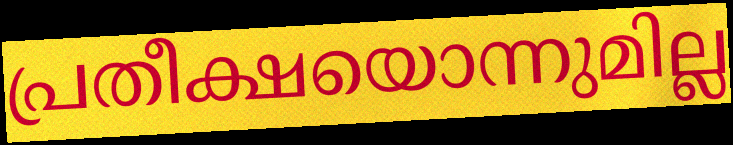
പ്രതീക്ഷയൊന്നുമില്ല